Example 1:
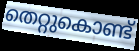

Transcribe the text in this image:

തെറ്റുകൊണ്ട്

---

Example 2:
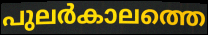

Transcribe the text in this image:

പുലർകാലത്തെ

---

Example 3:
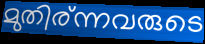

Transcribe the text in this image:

മുതിര്ന്നവരുടെ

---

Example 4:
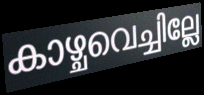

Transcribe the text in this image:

കാഴ്ചവെച്ചില്ലേ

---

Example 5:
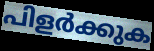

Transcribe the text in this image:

പിളർക്കുക